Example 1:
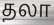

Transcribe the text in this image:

தலா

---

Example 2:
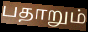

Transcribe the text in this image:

பதாறும்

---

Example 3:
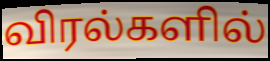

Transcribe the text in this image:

விரல்களில்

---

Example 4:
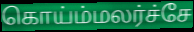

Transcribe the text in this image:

கொய்ம்மலர்ச்சே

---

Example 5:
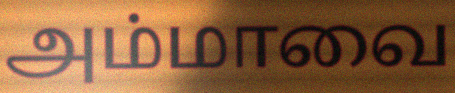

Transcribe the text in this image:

அம்மாவை